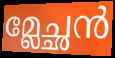
മ്ലേച്ഛൻ